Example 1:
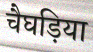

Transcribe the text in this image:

चैघड़िया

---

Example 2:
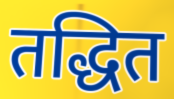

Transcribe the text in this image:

तद्धित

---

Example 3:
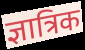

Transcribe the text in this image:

ज्ञात्रिक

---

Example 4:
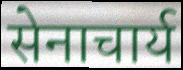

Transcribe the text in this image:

सेनाचार्य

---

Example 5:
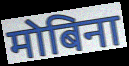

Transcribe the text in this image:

मोबिना